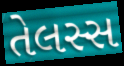
તેલસ્સ